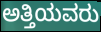
ಅತ್ತಿಯವರು